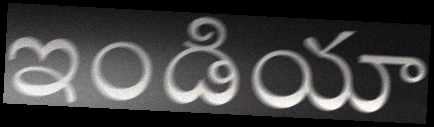
ఇండియా